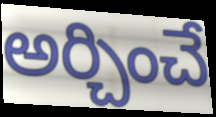
అర్చించే